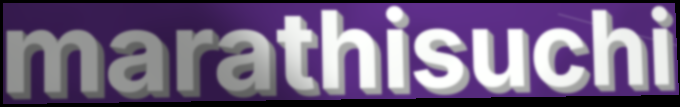
marathisuchi